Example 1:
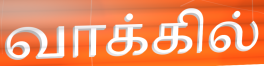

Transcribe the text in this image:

வாக்கில்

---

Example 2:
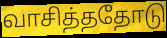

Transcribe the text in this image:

வாசித்ததோடு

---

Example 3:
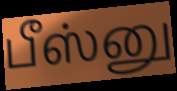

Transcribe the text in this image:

பீஸ்னு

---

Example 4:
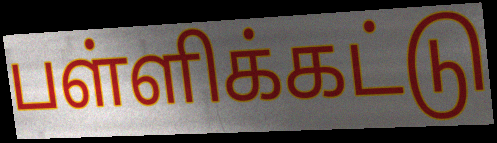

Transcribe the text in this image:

பள்ளிக்கட்டு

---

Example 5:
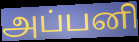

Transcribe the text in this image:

அப்பனி